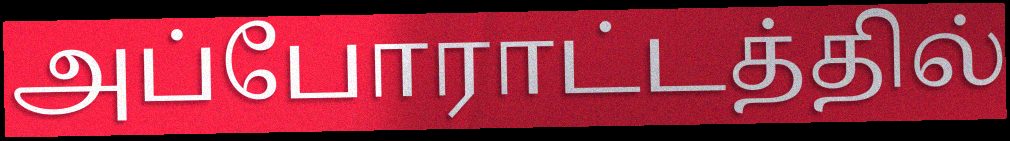
அப்போராட்டத்தில்